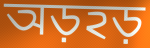
অড়হড়